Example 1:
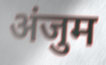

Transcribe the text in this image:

अंजुम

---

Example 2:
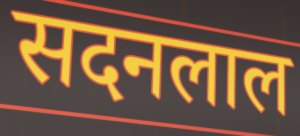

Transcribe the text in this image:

सदनलाल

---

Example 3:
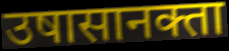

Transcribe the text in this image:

उषासानक्ता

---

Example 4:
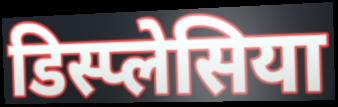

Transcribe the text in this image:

डिस्प्लेसिया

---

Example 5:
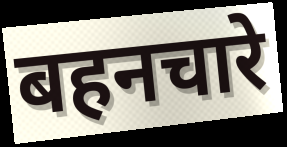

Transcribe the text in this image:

बहनचारे